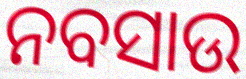
ନବସାଉ